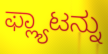
ಫ್ಲ್ಯಾಟನ್ನು